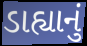
ડાહ્યાનું